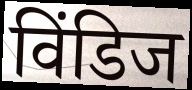
विंडिज